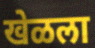
खेळला